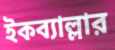
ইকব্যাল্লার